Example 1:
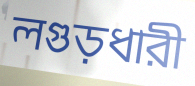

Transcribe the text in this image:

লগুড়ধারী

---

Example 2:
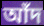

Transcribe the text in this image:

আঁদ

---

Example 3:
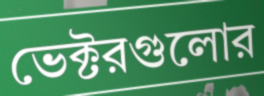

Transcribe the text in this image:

ভেক্টরগুলোর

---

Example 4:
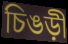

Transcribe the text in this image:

চিঙড়ী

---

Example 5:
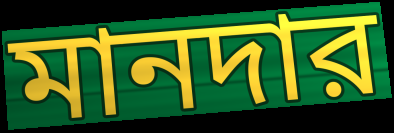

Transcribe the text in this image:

মানদার